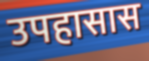
उपहासास